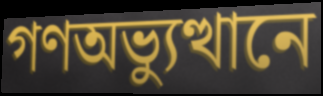
গণঅভ্যুত্থানে